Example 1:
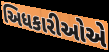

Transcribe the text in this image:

અિધકારીઓએ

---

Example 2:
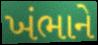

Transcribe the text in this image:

ખંભાને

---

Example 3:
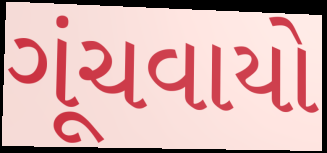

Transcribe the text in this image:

ગૂંચવાયો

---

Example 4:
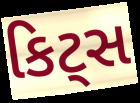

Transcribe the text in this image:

કિટ્સ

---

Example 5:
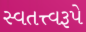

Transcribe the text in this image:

સ્વતત્ત્વરૂપે